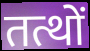
तत्थों